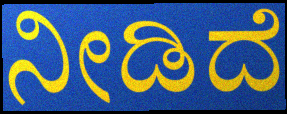
ನೀಡಿದೆ